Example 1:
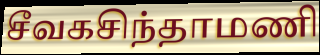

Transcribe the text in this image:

சீவகசிந்தாமணி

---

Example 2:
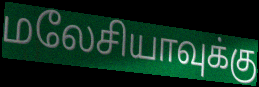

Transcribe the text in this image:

மலேசியாவுக்கு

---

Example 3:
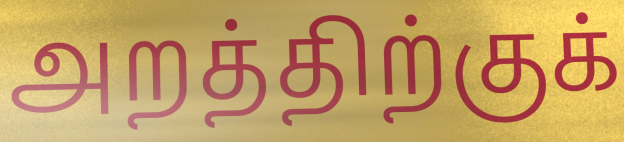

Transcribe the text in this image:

அறத்திற்குக்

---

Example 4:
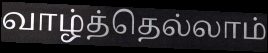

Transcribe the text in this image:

வாழ்த்தெல்லாம்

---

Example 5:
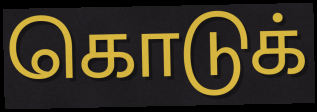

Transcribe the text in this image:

கொடுக்